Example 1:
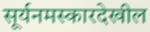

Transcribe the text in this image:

सूर्यनमस्कारदेखील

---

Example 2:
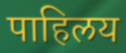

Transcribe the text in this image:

पाहिलय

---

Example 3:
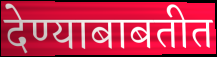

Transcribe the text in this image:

देण्याबाबतीत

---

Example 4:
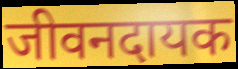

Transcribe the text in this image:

जीवनदायक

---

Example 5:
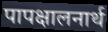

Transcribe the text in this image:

पापक्षालनार्थ